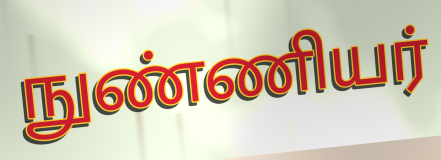
நுண்ணியர்